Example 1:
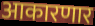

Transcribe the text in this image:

आकारणार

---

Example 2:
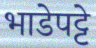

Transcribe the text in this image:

भाडेपट्टे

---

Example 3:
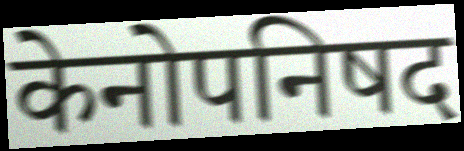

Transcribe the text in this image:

केनोपनिषद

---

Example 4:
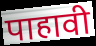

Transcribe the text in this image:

पाहावी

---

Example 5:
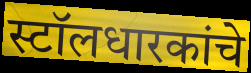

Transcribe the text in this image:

स्टॉलधारकांचे